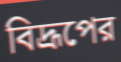
বিদ্রূপের